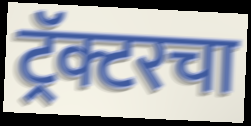
ट्रॅक्टरचा